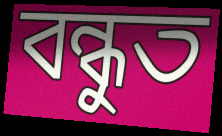
বন্ধুত